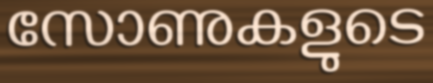
സോണുകളുടെ